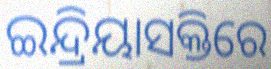
ଇନ୍ଦ୍ରିୟାସକ୍ତିରେ